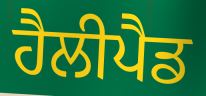
ਹੈਲੀਪੈਡ